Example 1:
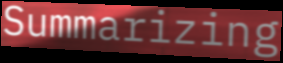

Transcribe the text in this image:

Summarizing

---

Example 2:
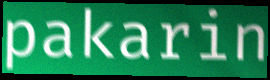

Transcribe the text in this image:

pakarin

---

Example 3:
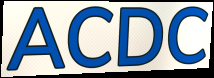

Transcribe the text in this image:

ACDC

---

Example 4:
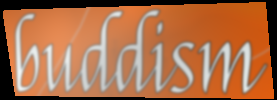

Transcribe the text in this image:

buddism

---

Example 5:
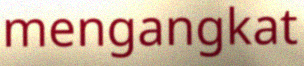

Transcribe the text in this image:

mengangkat